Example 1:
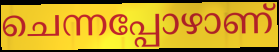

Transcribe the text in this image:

ചെന്നപ്പോഴാണ്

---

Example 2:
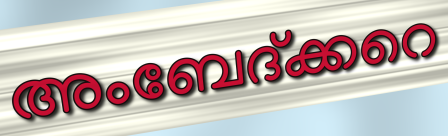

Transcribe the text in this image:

അംബേദ്ക്കറെ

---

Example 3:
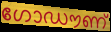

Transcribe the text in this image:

ഗോഡൗണ്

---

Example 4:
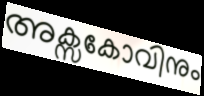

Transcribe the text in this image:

അക്സകോവിനും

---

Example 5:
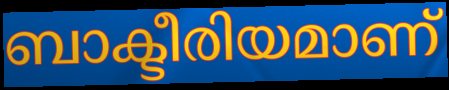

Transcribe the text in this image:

ബാക്ടീരിയമാണ്